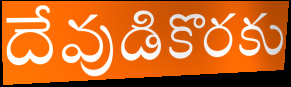
దేవుడికొరకు